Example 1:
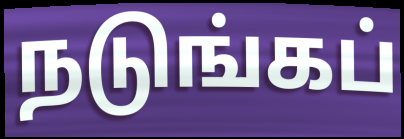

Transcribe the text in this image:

நடுங்கப்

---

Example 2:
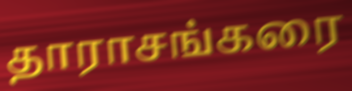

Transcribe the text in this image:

தாராசங்கரை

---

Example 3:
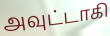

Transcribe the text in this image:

அவுட்டாகி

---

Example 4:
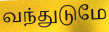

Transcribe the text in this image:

வந்துடுமே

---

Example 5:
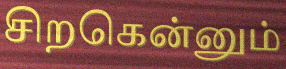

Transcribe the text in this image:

சிறகென்னும்